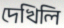
দেখিলি